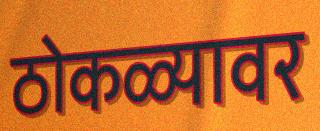
ठोकळ्यावर